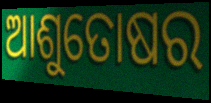
ଆଶୁତୋଷର